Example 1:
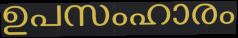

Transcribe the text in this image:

ഉപസംഹാരം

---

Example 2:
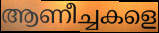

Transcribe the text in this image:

ആണീച്ചകളെ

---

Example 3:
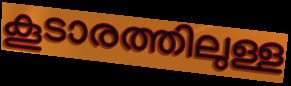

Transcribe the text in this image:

കൂടാരത്തിലുള്ള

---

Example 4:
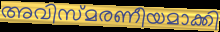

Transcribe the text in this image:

അവിസ്മരണീയമാക്കി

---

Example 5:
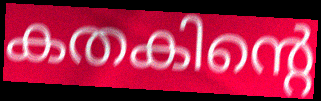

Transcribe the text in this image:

കതകിന്റെ